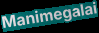
Manimegalai